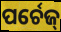
ପର୍ଚେଜ୍